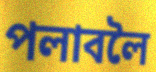
পলাবলৈ